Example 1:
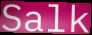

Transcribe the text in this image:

Salk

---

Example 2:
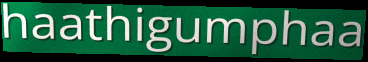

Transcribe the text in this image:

haathigumphaa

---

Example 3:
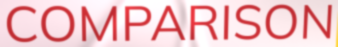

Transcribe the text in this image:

COMPARISON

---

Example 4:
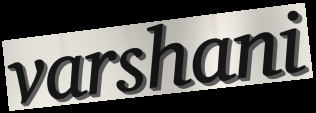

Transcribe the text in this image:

varshani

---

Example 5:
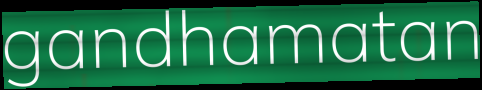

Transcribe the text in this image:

gandhamatan